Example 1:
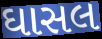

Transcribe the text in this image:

ઘાસલ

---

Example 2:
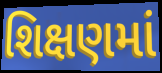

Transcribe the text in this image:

શિક્ષણમાં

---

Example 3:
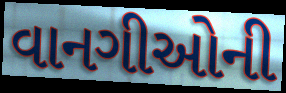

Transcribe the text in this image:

વાનગીઓની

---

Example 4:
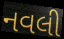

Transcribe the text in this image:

નવલી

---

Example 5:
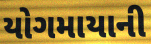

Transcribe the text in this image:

યોગમાયાની